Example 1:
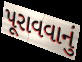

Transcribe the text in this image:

પૂરાવવાનું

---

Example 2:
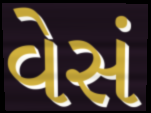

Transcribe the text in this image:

વેસં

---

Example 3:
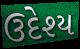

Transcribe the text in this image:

ઉદેશ્ય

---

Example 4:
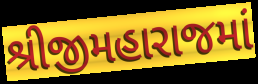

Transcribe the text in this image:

શ્રીજીમહારાજમાં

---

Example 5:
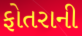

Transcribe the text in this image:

ફોતરાની